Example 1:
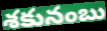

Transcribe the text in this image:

శకునంబు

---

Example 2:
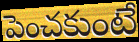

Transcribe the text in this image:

పెంచకుంటే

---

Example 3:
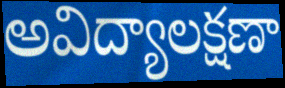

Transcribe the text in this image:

అవిద్యాలక్షణా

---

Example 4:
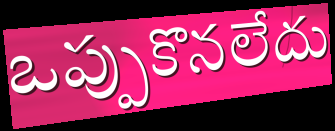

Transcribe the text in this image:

ఒప్పుకొనలేదు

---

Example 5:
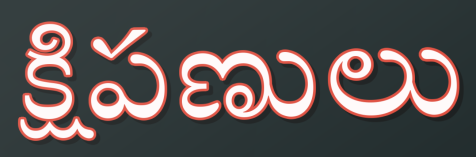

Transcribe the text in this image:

క్షిపణులు